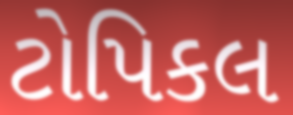
ટોપિકલ